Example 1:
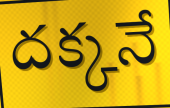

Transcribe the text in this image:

దక్కనే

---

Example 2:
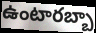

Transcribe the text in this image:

ఉంటారబ్బా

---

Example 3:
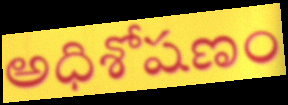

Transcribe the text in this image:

అధిశోషణం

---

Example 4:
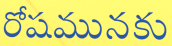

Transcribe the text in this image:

రోషమునకు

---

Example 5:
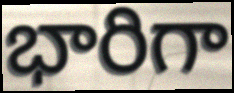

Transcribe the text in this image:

భారిగా